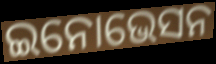
ଇନୋଭେସନ